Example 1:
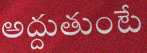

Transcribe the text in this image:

అద్దుతుంటే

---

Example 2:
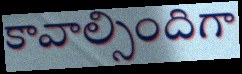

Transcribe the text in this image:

కావాల్సిందిగా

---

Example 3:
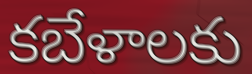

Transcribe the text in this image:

కబేళాలకు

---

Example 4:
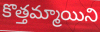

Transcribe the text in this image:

కొత్తమ్మాయిని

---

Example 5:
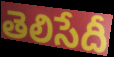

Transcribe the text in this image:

తెలిసేదీ